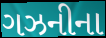
ગઝનીના